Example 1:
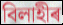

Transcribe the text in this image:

বিলাহীৰ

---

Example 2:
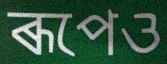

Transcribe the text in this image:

ৰূপেও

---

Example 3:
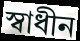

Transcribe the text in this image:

স্বাধীন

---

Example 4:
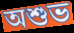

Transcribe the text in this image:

অশুভ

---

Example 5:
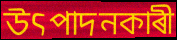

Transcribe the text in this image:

উৎপাদনকাৰী